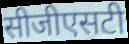
सीजीएसटी